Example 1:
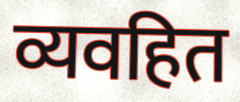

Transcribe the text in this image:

व्यवहित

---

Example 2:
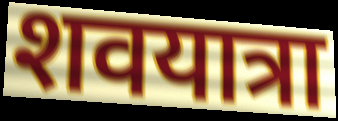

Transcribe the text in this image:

शवयात्रा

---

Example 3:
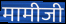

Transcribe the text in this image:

मामीजी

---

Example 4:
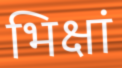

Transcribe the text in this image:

भिक्षां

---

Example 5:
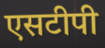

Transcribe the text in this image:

एसटीपी